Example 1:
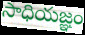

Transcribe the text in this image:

సాధియజ్ఞం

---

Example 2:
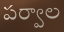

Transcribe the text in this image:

పర్వాల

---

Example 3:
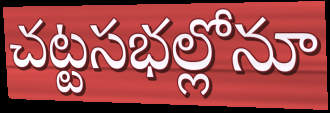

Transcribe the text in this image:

చట్టసభల్లోనూ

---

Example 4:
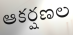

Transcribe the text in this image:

ఆకర్షణల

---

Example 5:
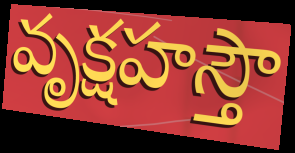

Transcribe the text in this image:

వృక్షహస్తౌ